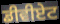
ਡੀਵੀਏਟ